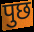
पुछ